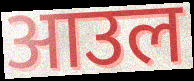
आउल